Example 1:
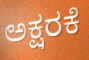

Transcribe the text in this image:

ಅಕ್ಷರಕೆ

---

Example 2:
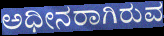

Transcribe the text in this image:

ಅಧೀನರಾಗಿರುವ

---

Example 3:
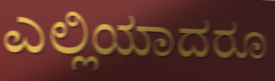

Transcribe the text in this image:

ಎಲ್ಲಿಯಾದರೂ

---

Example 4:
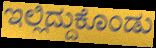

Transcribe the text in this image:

ಇಲ್ಲಿದ್ದುಕೊಂಡು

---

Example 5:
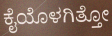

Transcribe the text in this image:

ಕೈಯೊಳಗಿತ್ತೋ